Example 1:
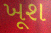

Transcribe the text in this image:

ખૂશ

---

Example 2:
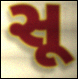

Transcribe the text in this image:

સૂ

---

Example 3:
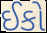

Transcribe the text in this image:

ઈકો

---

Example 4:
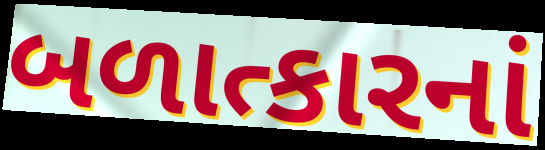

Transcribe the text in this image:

બળાત્કારનાં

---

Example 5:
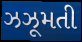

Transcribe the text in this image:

ઝઝૂમતી